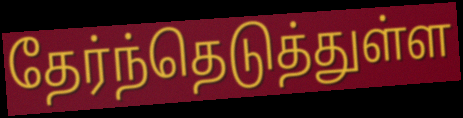
தேர்ந்தெடுத்துள்ள